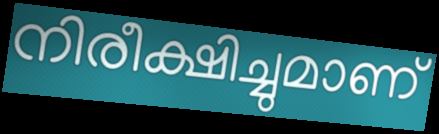
നിരീക്ഷിച്ചുമാണ്